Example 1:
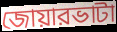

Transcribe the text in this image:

জোয়ারভাটা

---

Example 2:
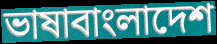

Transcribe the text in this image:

ভাষাবাংলাদেশ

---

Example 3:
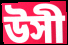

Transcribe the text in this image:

উসী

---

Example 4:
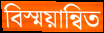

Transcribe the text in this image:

বিস্ময়ান্বিত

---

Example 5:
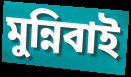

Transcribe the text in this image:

মুন্নিবাই